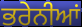
ਭਰੇਨੀਆਂ